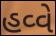
હવ્વે